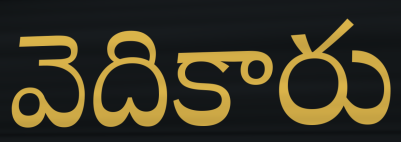
వెదికారు